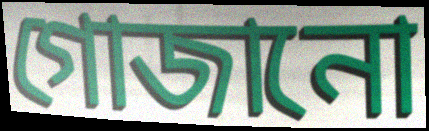
গোজানো